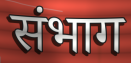
संभाग